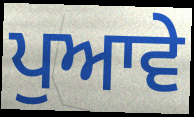
ਪੁਆਵੇ